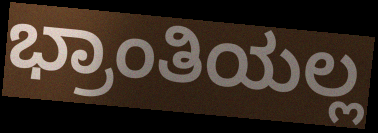
ಭ್ರಾಂತಿಯಲ್ಲ